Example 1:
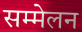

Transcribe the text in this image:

सम्‍मेलन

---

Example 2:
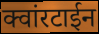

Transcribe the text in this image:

क्वांरटाईन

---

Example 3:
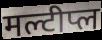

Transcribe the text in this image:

मल्टीप्ल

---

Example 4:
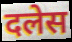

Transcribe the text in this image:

दलेस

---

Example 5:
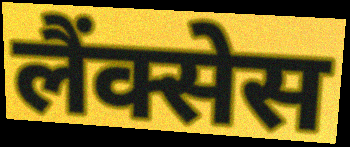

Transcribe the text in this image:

लैंक्सेस